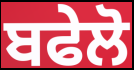
ਬਫੇਲੋ